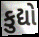
કુદ્યો